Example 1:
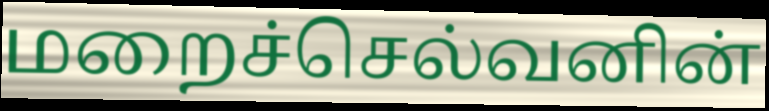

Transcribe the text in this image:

மறைச்செல்வனின்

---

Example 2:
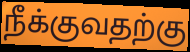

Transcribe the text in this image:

நீக்குவதற்கு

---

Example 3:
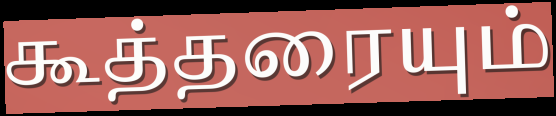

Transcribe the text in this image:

கூத்தரையும்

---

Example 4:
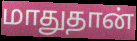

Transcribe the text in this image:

மாதுதான்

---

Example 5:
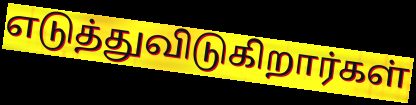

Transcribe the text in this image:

எடுத்துவிடுகிறார்கள்